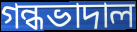
গন্ধভাদাল